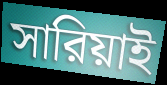
সারিয়াই